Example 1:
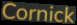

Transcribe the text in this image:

Cornick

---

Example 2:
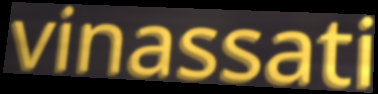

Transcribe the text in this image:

vinassati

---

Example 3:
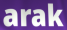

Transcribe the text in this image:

arak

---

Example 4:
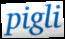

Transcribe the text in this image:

pigli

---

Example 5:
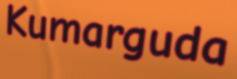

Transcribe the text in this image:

Kumarguda